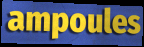
ampoules